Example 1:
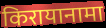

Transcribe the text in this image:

किरायानामा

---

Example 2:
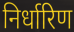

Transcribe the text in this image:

निर्धारिण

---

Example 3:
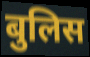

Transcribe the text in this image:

बुलिस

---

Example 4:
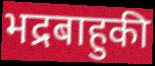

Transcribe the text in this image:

भद्रबाहुकी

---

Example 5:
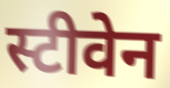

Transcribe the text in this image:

स्टीवेन